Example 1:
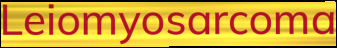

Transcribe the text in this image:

Leiomyosarcoma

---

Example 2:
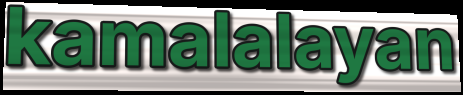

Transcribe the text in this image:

kamalalayan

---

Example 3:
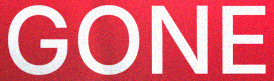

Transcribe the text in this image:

GONE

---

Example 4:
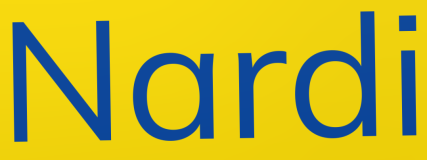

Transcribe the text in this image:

Nardi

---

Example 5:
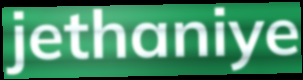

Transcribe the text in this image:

jethaniye